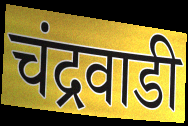
चंद्रवाडी